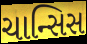
ચાન્સિસ